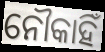
ନୌକାହିଁ